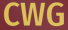
CWG